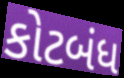
કોટબંધ